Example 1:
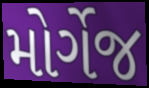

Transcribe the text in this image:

મોર્ગેજ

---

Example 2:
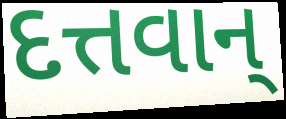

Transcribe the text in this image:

દત્તવાન્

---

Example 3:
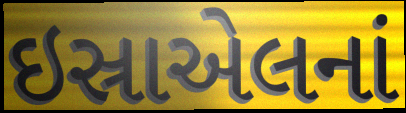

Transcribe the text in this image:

ઇસ્રાએલનાં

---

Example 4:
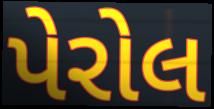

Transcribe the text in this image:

પેરોલ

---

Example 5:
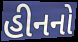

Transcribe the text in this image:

હીનનો